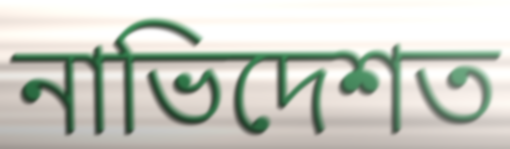
নাভিদেশত